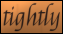
tightly